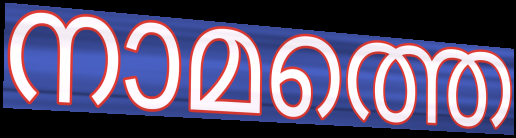
നാമത്തെ